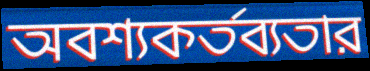
অবশ্যকর্তব্যতার